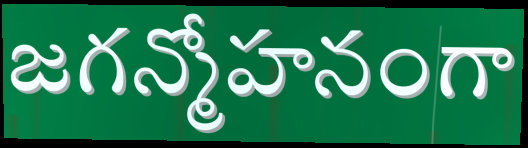
జగన్మోహనంగా